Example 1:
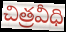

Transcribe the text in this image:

చిత్రవీధి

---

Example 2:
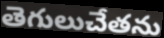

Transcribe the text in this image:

తెగులుచేతను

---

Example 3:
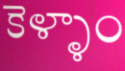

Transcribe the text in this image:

కెళ్ళాం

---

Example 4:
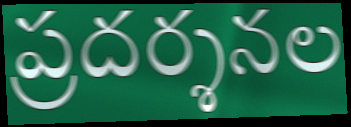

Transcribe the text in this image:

ప్రదర్శనల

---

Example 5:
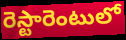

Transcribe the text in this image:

రెస్టారెంటులో